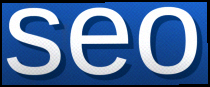
seo